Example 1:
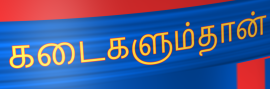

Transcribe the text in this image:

கடைகளும்தான்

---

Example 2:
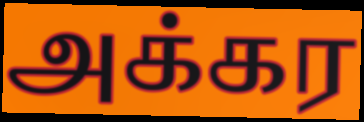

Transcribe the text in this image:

அக்கர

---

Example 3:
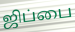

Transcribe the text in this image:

ஜிப்பை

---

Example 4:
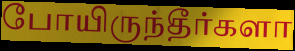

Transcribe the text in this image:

போயிருந்தீர்களா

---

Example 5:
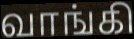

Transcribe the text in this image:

வாங்கி